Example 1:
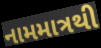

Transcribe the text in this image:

નામમાત્રથી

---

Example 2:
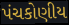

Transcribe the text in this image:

પંચકોણીય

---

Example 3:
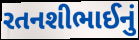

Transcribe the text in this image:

રતનશીભાઈનું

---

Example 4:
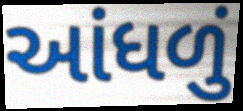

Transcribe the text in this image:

આંધળું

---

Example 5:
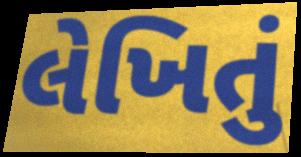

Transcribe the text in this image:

લેખિતું